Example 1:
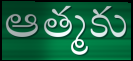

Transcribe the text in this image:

ఆత్మకు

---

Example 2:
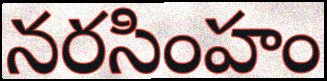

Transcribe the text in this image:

నరసింహం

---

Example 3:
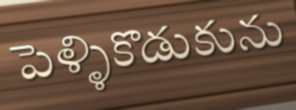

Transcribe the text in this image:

పెళ్ళికొడుకును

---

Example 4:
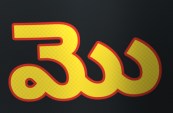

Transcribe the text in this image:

మొ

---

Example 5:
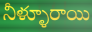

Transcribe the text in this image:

నీళ్ళూరాయి